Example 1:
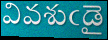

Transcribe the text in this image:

వివశుఁడై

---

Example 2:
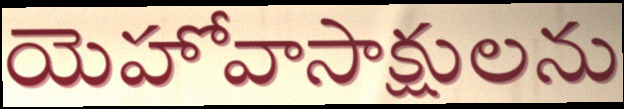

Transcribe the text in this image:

యెహోవాసాక్షులను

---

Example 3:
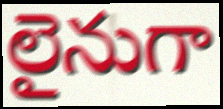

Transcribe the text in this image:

లైనుగా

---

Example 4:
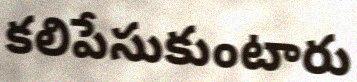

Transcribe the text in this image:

కలిపేసుకుంటారు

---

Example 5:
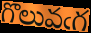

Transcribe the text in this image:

గొలువఁగ